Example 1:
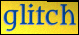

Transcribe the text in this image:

glitch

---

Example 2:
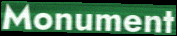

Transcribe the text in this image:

Monument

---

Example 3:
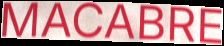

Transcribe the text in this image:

MACABRE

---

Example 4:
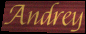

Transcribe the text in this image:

Andrey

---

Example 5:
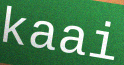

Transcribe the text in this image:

kaai